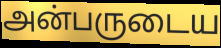
அன்பருடைய